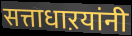
सत्ताधाऱयांनी